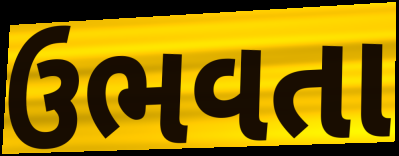
ઉભવતા